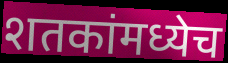
शतकांमध्येच